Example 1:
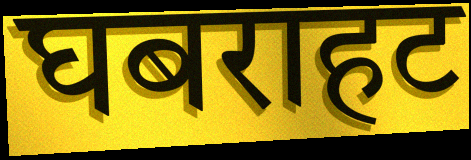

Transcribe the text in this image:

घबराहट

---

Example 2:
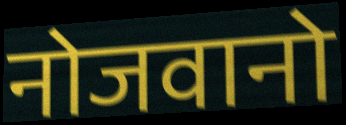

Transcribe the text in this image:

नोजवानो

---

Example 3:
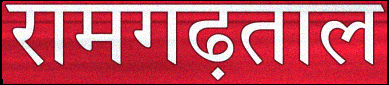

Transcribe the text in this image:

रामगढ़ताल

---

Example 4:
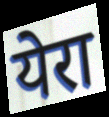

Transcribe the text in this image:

येरा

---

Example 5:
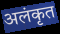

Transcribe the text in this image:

अलंकृत